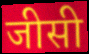
जीसी